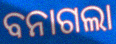
ବନାଗଲା